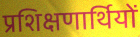
प्रशिक्षणार्थियों